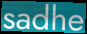
sadhe